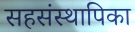
सहसंस्थापिका